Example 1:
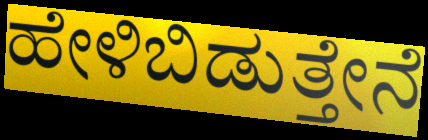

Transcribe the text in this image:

ಹೇಳಿಬಿಡುತ್ತೇನೆ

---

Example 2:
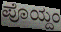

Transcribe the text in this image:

ಪೊಯ್ದಂ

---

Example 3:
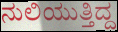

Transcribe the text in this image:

ನುಲಿಯುತ್ತಿದ್ದ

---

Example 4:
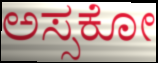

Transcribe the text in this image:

ಅಸ್ಸಕೋ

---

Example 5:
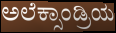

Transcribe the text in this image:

ಅಲೆಕ್ಸಾಂಡ್ರಿಯ